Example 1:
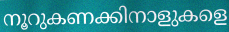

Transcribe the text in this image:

നൂറുകണക്കിനാളുകളെ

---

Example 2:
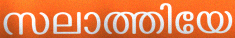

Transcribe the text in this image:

സലാത്തിയേ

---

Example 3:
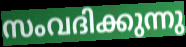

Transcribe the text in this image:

സംവദിക്കുന്നു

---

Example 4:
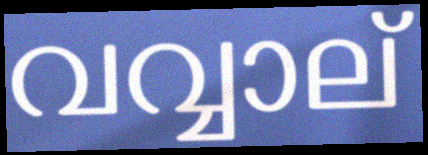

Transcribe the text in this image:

വവ്വാല്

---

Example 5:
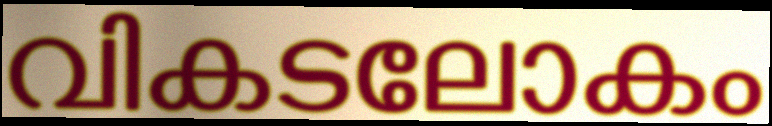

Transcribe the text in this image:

വികടലോകം